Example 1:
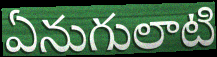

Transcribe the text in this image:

ఏనుగులాటి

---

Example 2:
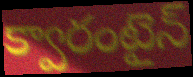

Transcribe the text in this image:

క్వారంటైన్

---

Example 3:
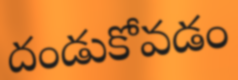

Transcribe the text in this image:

దండుకోవడం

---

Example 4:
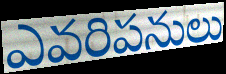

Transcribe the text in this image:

ఎవరిపనులు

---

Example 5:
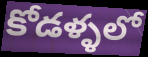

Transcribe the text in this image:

కోడళ్ళలో